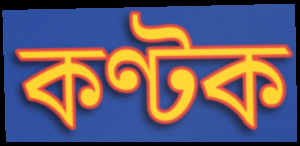
কণ্টক